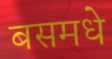
बसमधे